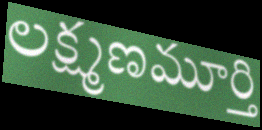
లక్ష్మణమూర్తి